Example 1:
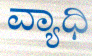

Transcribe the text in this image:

ವ್ಯಾಧಿ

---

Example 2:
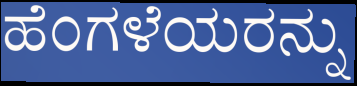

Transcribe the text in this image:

ಹೆಂಗಳೆಯರನ್ನು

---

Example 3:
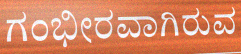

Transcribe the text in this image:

ಗಂಭೀರವಾಗಿರುವ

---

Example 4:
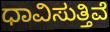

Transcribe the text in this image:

ಧಾವಿಸುತ್ತಿವೆ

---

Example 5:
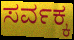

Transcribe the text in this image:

ಸರ್ವಕ್ಕ